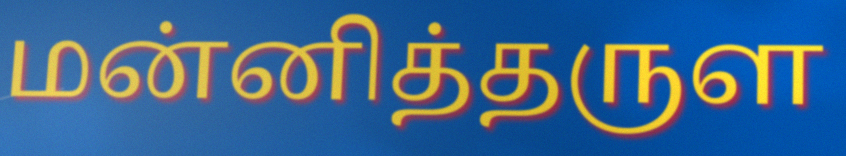
மன்னித்தருள